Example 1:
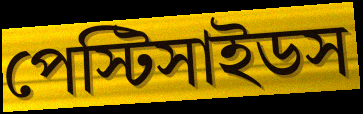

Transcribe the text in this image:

পেস্টিসাইডস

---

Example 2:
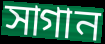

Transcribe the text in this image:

সাগান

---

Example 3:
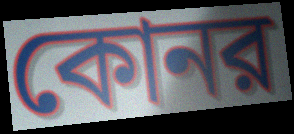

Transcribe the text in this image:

কোনর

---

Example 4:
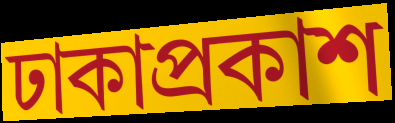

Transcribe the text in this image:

ঢাকাপ্রকাশ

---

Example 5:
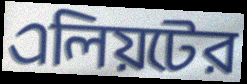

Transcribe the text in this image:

এলিয়টের